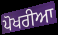
ਪੋਖਰੀਆ